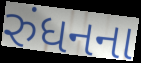
રુંધનના